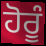
ਹੋਰੂੰ